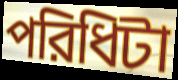
পরিধিটা